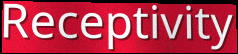
Receptivity